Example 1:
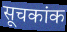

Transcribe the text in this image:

सूचकांक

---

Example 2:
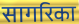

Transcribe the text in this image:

सागरिका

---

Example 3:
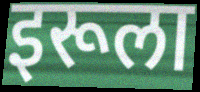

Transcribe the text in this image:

इरूला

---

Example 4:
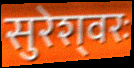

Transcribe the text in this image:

सुरेश्वरः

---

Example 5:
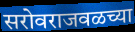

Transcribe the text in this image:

सरोवराजवळच्या